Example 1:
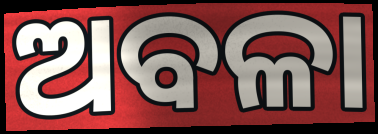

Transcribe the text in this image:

ଅବଳା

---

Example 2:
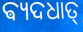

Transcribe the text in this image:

ଵ୍ୟଦଧାତ୍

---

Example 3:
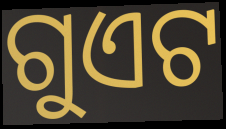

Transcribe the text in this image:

ଗୁଏଟ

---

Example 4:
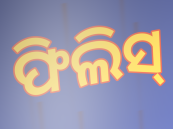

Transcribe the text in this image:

ଫିଲିସ୍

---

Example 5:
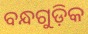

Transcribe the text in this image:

ବନ୍ଧଗୁଡ଼ିକ